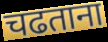
चढताना